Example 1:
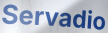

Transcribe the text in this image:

Servadio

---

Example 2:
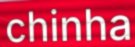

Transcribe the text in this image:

chinha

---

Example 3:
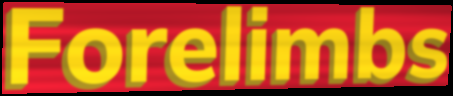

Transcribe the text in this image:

Forelimbs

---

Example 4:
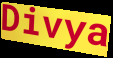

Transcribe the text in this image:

Divya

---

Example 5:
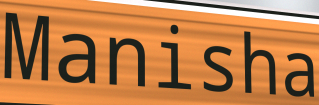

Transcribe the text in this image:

Manisha